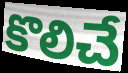
కొలిచే